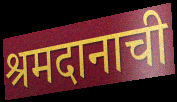
श्रमदानाची